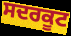
ਸਦਰਕੂਟ